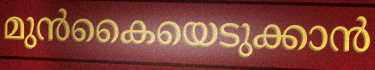
മുൻകൈയെടുക്കാൻ